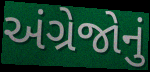
અંગ્રેજોનું